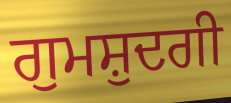
ਗੁਮਸ਼ੁਦਗੀ